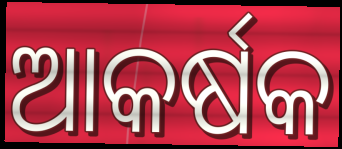
ଆକର୍ଷକ